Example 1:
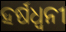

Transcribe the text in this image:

ହର୍ଷଧ୍ୱନୀ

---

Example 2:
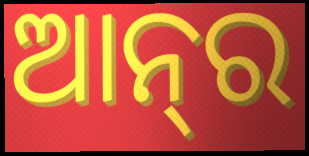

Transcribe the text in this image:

ଆନ୍‌ର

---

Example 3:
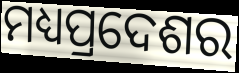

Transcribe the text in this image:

ମଧ୍ଯପ୍ରଦେଶର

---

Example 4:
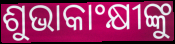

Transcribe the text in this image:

ଶୁଭାକାଂକ୍ଷୀଙ୍କୁ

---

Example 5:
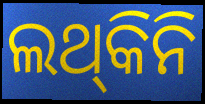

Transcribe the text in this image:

ଲଥ୍‍କିନି